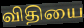
விதியை